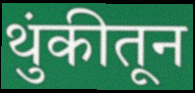
थुंकीतून